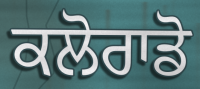
ਕਲੋਰਾਡੋ